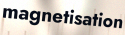
magnetisation